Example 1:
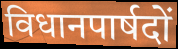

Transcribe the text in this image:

विधानपार्षदों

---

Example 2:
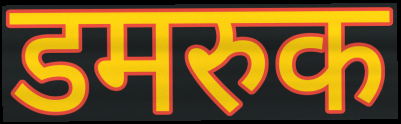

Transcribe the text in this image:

डमरुक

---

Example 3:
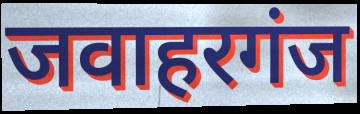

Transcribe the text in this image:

जवाहरगंज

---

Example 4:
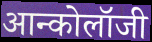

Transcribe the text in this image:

आन्कोलॉजी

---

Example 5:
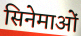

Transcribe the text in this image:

सिनेमाओं